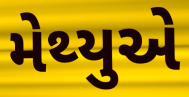
મેથ્યુએ